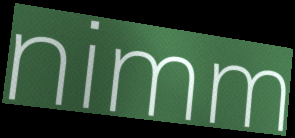
nimm